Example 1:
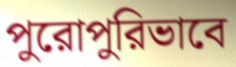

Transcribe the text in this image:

পুরোপুরিভাবে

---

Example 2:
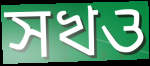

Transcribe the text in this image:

সখও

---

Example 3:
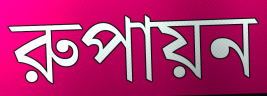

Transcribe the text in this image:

রুপায়ন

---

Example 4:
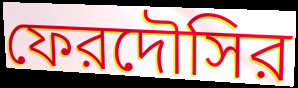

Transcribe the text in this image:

ফেরদৌসির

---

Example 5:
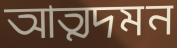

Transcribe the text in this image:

আত্মদমন